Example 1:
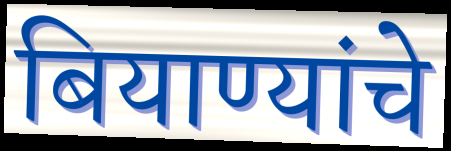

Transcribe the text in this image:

बियाण्यांचे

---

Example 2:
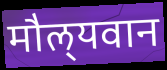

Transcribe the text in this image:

मौल्यवान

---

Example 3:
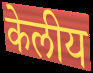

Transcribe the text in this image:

केलीय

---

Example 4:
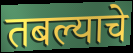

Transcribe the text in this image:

तबल्याचे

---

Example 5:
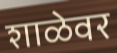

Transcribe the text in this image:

शाळेवर